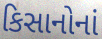
કિસાનોનાં